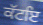
ਕੱਟਇ